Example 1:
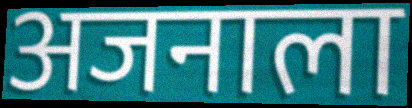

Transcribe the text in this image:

अजनाला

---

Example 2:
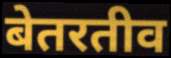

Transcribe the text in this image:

बेतरतीव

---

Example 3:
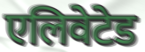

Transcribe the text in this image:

एलिवेटेड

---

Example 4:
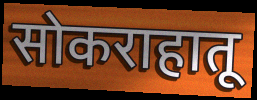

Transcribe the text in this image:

सोकराहातू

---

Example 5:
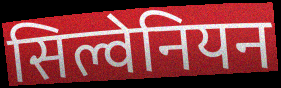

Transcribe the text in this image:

सिल्वेनियन